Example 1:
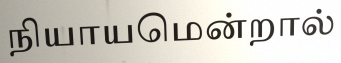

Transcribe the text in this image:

நியாயமென்றால்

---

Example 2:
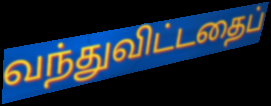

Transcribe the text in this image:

வந்துவிட்டதைப்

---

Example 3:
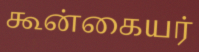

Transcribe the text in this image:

கூன்கையர்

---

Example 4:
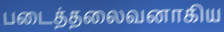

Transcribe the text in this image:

படைத்தலைவனாகிய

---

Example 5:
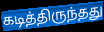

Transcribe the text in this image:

கடித்திருந்தது